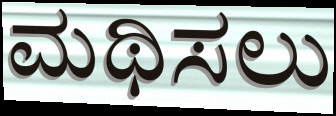
ಮಥಿಸಲು